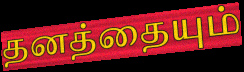
தனத்தையும்